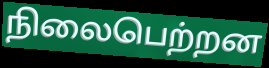
நிலைபெற்றன